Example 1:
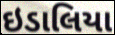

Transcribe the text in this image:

ઇડાલિયા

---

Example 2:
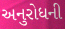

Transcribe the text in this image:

અનુરોધની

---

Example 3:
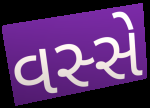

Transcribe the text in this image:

વસ્સે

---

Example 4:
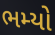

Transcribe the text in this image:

ભમ્યો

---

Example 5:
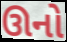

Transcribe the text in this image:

ઊનો